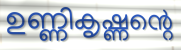
ഉണ്ണികൃഷ്ണന്റെ